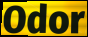
Odor